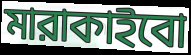
মারাকাইবো